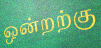
ஒன்றற்கு